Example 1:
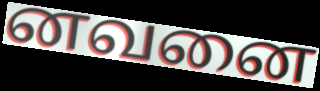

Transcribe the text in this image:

னவனை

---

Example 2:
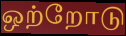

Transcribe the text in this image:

ஒற்றோடு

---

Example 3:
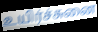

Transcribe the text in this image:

உயிர்ச்சுனை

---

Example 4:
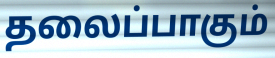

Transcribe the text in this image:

தலைப்பாகும்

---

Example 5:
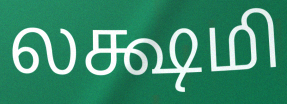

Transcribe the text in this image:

லக்ஷமி